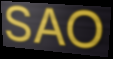
SAO